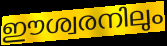
ഈശ്വരനിലും